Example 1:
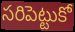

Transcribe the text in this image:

సరిపెట్టుకో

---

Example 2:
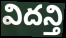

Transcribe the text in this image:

విదన్తి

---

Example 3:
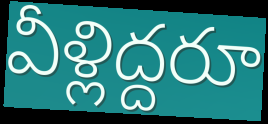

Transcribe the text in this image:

వీళ్లిద్దరూ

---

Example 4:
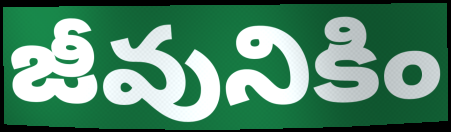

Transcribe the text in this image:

జీవునికిం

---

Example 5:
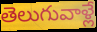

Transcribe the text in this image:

తెలుగువాళ్లే